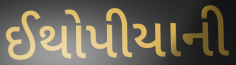
ઈથોપીયાની